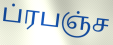
ப்ரபஞ்ச